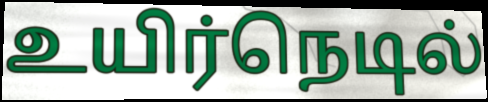
உயிர்நெடில்